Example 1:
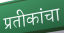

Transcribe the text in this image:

प्रतीकांचा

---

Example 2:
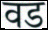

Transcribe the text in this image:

वड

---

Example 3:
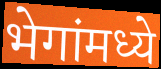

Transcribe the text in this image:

भेगांमध्ये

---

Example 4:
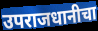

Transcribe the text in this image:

उपराजधानीचा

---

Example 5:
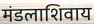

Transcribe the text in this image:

मंडलाशिवाय